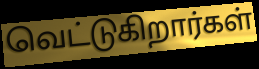
வெட்டுகிறார்கள்